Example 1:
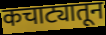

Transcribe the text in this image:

कचाट्यातून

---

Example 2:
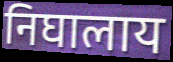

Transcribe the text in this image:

निघालाय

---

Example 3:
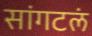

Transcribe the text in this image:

सांगटलं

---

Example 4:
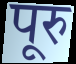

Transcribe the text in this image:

पूरु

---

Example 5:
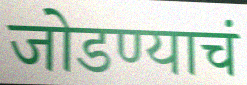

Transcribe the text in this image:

जोडण्याचं